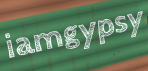
iamgypsy